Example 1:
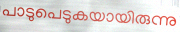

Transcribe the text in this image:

പാടുപെടുകയായിരുന്നു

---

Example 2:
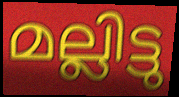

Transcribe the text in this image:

മല്ലിട്ടു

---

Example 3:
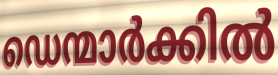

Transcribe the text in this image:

ഡെന്മാർക്കിൽ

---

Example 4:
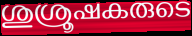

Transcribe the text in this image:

ശുശ്രൂഷകരുടെ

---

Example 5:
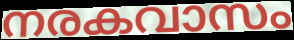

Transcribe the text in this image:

നരകവാസം